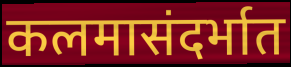
कलमासंदर्भात